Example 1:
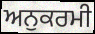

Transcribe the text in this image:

ਅਨੁਕਰਮੀ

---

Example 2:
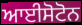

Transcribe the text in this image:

ਆਈਸੋਟੋਨ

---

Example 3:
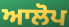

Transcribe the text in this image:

ਆਲੋਪ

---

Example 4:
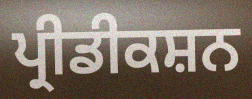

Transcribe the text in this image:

ਪ੍ਰੀਡੀਕਸ਼ਨ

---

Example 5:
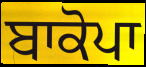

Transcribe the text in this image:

ਬਾਕੋਪਾ